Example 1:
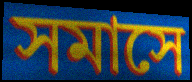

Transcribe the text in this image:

সমাসে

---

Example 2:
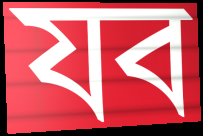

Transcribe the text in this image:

যব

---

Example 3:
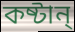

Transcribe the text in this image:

কষ্টান্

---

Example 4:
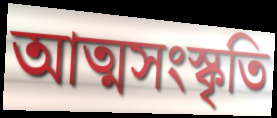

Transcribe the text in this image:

আত্মসংস্কৃতি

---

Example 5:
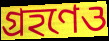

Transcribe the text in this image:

গ্রহণেও